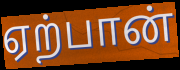
ஏற்பான்